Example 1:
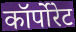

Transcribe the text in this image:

कॉर्पोरेट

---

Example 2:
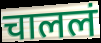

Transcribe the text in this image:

चाललं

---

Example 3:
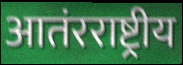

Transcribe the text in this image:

आतंरराष्ट्रीय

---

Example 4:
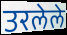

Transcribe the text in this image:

उरलेले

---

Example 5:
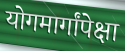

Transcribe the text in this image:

योगमार्गांपेक्षा